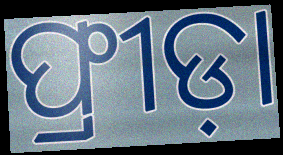
ଫ୍ରୀଡ଼ା